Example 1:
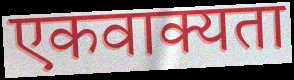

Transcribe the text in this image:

एकवाक्यता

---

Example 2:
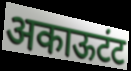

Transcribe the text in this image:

अकाऊटंट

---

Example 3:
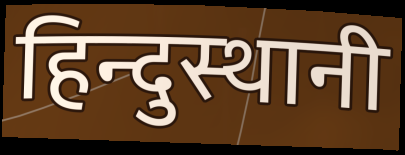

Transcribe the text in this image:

हिन्दुस्थानी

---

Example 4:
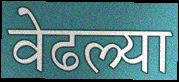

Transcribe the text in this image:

वेढल्या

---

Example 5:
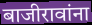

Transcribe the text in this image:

बाजीरावांना